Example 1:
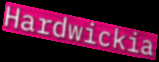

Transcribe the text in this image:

Hardwickia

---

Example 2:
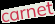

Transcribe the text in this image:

carnet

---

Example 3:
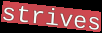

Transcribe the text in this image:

strives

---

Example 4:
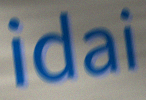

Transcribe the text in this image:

idai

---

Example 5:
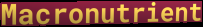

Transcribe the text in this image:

Macronutrient